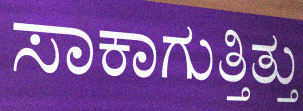
ಸಾಕಾಗುತ್ತಿತ್ತು